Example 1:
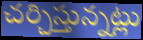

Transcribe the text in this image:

చర్చిస్తున్నట్లు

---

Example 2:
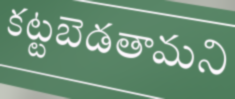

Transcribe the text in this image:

కట్టబెడతామని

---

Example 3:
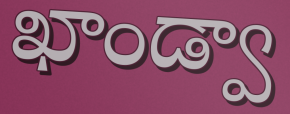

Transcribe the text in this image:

ఖాండ్వా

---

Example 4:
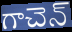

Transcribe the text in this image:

గాచెన్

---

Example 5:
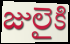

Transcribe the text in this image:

జులైకి